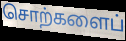
சொற்களைப்